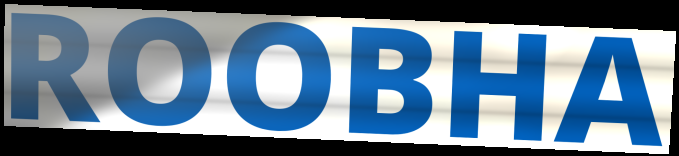
ROOBHA